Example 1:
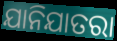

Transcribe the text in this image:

ଯାନିଯାତରା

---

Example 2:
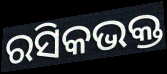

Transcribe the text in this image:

ରସିକଭକ୍ତ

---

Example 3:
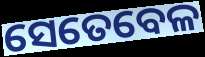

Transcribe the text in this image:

ସେତେବେଳ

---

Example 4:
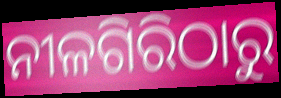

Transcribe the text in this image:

ନୀଳଗିରିଠାରୁ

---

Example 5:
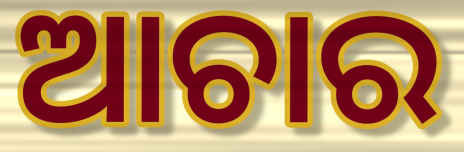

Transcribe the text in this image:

ଆଚାର